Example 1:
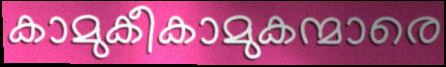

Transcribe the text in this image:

കാമുകീകാമുകന്മാരെ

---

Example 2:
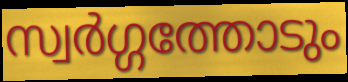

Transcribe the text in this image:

സ്വർഗ്ഗത്തോടും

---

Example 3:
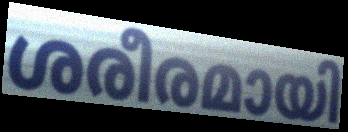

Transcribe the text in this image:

ശരീരമായി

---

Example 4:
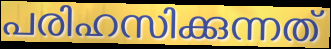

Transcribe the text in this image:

പരിഹസിക്കുന്നത്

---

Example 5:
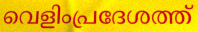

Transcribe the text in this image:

വെളിംപ്രദേശത്ത്